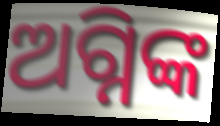
ଅଗ୍ନିଙ୍କ